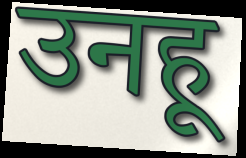
उनहू